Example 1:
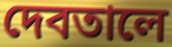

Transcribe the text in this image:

দেবতালে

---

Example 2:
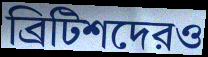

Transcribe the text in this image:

ব্রিটিশদেরও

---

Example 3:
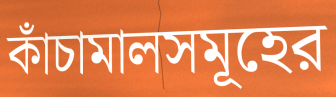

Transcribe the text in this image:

কাঁচামালসমূহের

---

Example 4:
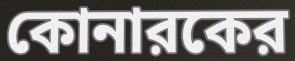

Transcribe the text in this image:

কোনারকের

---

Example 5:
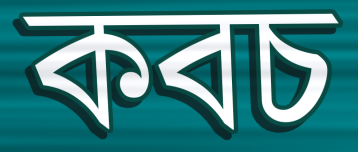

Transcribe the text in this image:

কবচ